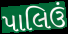
પાલિઉં